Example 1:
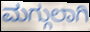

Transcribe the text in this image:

ಮಗ್ಗುಲಾಗಿ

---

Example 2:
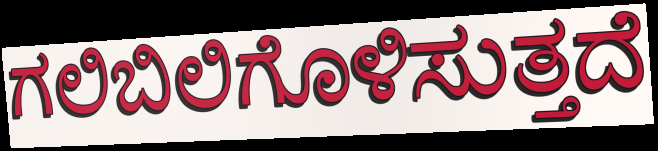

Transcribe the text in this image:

ಗಲಿಬಿಲಿಗೊಳಿಸುತ್ತದೆ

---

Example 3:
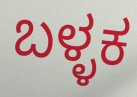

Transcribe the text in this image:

ಬಳ್ಳಕ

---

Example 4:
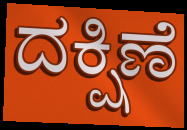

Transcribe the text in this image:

ದಕ್ಷಿಣೆ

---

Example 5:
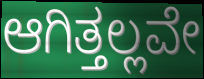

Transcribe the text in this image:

ಆಗಿತ್ತಲ್ಲವೇ